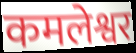
कमलेश्वर